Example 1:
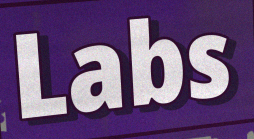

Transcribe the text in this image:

Labs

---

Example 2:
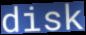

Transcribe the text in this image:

disk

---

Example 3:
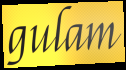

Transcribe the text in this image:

gulam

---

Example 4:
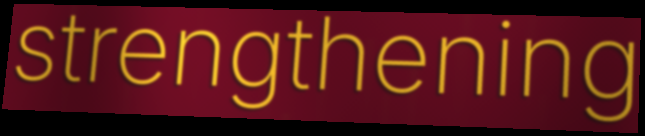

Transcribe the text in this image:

strengthening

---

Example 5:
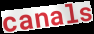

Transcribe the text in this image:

canals